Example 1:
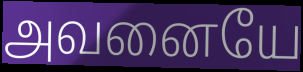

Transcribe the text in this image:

அவனையே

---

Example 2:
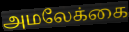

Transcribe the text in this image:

அமலேக்கை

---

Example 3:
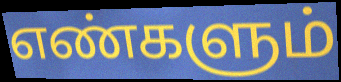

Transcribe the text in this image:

எண்களும்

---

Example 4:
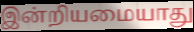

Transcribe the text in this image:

இன்றியமையாது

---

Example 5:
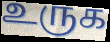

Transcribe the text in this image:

உருக